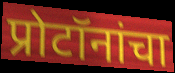
प्रोटॉनांचा